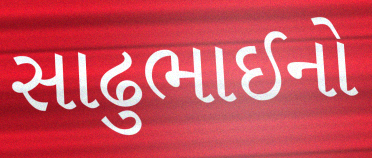
સાઢુભાઈનો